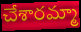
చేశారమ్మా